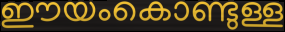
ഈയംകൊണ്ടുള്ള